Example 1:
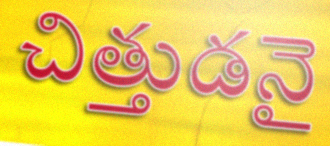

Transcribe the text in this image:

చిత్తుడనై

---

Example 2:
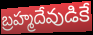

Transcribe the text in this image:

బ్రహ్మదేవుడికే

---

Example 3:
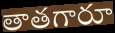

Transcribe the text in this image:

తాతగారూ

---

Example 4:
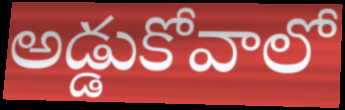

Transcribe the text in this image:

అడ్డుకోవాలో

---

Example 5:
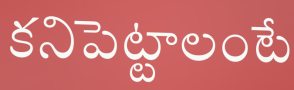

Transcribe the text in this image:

కనిపెట్టాలంటే